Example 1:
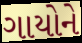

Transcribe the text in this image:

ગાયોને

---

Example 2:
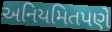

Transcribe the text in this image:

અનિયમિતપણે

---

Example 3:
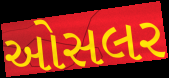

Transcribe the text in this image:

ઓસલર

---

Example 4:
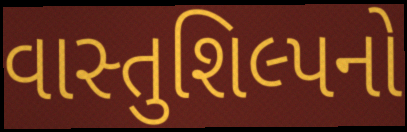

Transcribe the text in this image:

વાસ્તુશિલ્પનો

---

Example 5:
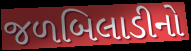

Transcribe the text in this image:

જળબિલાડીનો